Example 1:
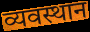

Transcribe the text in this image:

व्यवस्थान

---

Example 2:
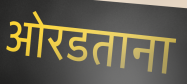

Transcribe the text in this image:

ओरडताना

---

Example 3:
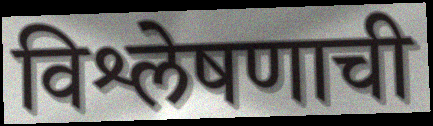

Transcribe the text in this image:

विश्लेषणाची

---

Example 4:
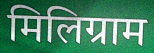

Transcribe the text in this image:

मिलिग्राम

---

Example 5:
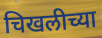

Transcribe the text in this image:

चिखलीच्या